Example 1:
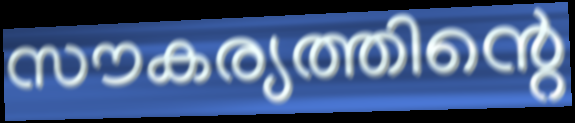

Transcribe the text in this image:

സൗകര്യത്തിന്റെ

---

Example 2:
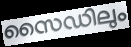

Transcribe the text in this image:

സൈഡിലും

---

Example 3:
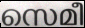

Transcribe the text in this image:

സെമീ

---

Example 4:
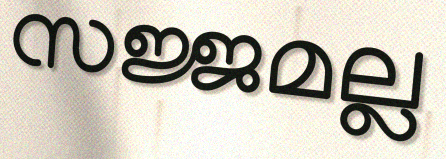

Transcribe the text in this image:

സജ്ജമല്ല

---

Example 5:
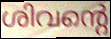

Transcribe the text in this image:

ശിവന്റെ